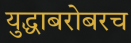
युद्धाबरोबरच